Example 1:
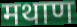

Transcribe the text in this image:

मथाण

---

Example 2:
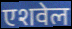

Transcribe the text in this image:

एशवेल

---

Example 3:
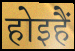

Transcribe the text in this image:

होइहैं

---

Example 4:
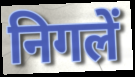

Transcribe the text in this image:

निगलें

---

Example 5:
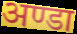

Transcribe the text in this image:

अण्डा